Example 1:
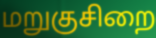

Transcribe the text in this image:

மறுகுசிறை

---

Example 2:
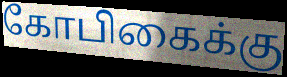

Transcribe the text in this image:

கோபிகைக்கு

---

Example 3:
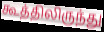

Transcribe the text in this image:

கூத்திலிருந்து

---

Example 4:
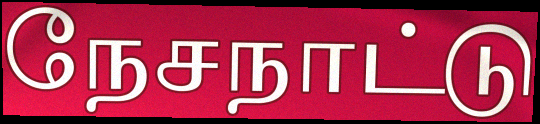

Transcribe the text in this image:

நேசநாட்டு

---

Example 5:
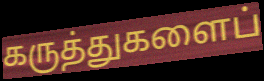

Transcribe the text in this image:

கருத்துகளைப்